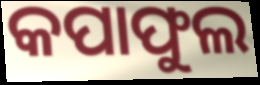
କପାଫୁଲ